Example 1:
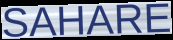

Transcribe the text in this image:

SAHARE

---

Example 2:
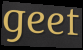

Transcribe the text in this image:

geet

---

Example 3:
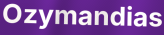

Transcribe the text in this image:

Ozymandias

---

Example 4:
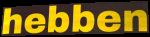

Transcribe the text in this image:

hebben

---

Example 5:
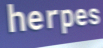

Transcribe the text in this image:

herpes